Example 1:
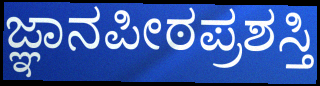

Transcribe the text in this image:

ಜ್ಞಾನಪೀಠಪ್ರಶಸ್ತಿ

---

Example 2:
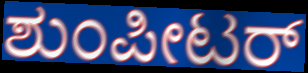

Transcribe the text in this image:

ಶುಂಪೀಟರ್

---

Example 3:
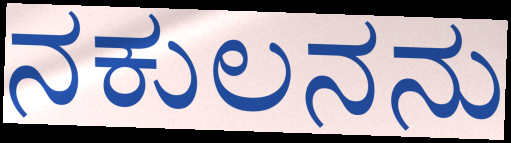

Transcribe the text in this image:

ನಕುಲನನು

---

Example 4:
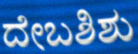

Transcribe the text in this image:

ದೇಬಶಿಶು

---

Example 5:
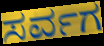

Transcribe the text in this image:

ಸರ್ವಗ